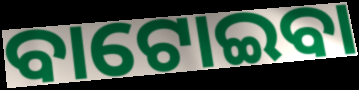
ବାଟୋଇବା